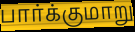
பார்க்குமாறு